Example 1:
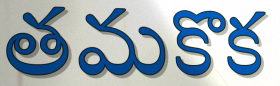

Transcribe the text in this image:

తమకొక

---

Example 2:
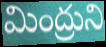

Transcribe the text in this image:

మింద్రుని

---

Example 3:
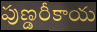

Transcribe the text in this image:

పుణ్డరీకాయ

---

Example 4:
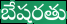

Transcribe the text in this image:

బేషరతు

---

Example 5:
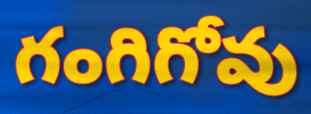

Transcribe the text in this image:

గంగిగోవు